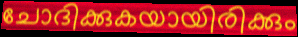
ചോദിക്കുകയായിരിക്കും